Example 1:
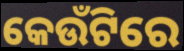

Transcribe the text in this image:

କେଉଁଟିରେ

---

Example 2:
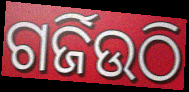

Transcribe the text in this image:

ଗର୍ଜିଉଠି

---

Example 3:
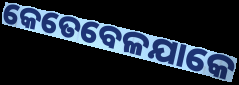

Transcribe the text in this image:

କେତେବେଳଯାକେ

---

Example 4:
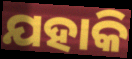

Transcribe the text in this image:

ଯହାକି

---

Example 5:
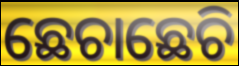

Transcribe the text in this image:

ଛେଚାଛେଚି